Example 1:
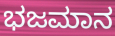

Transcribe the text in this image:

ಭಜಮಾನ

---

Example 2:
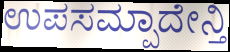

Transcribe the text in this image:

ಉಪಸಮ್ಪಾದೇನ್ತಿ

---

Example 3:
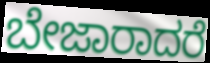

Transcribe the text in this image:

ಬೇಜಾರಾದರೆ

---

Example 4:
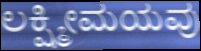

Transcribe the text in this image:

ಲಕ್ಷ್ಮೀಮಯವು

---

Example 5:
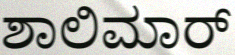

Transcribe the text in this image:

ಶಾಲಿಮಾರ್